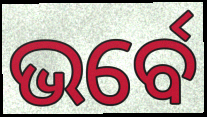
ଭର୍ବେ